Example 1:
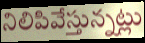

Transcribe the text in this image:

నిలిపివేస్తున్నట్లు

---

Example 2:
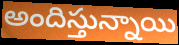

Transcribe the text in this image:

అందిస్తున్నాయి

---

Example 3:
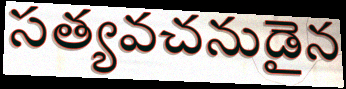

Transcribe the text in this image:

సత్యవచనుడైన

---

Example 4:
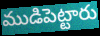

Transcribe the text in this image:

ముడిపెట్టారు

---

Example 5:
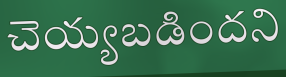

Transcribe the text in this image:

చెయ్యబడిందని